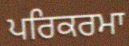
ਪਰਿਕਰਮਾ